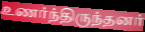
உணர்ந்திருந்தனர்